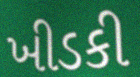
ખીડકી